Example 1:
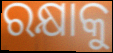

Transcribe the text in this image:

ରକ୍ଷାକୁ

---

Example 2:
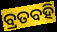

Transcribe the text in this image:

ବ୍ରତବହି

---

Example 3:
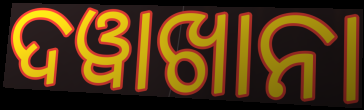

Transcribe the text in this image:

ଦୱାଖାନା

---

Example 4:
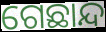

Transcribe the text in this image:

ଗେଛାନ୍ଦ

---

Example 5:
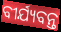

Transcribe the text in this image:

ବୀର୍ଯ୍ୟବନ୍ତ